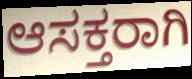
ಆಸಕ್ತರಾಗಿ